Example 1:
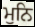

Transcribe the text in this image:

ਮੁਨਿ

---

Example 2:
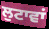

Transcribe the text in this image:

ਲੁਟਾਵਾਂ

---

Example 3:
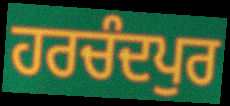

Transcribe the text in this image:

ਹਰਚੰਦਪੁਰ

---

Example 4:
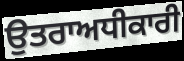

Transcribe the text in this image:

ਉਤਰਾਅਧੀਕਾਰੀ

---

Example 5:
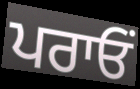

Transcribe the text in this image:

ਪਰਾਓਂ